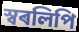
স্বৰলিপি